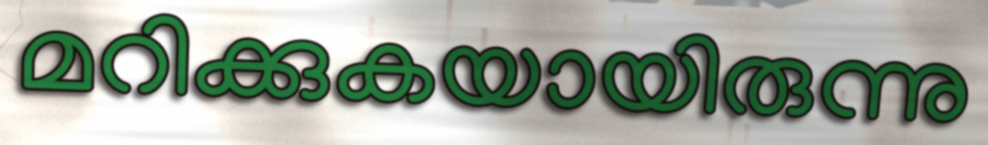
മറിക്കുകയായിരുന്നു